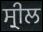
ਸ੍ਰੀਲ